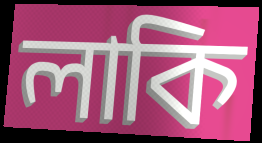
লাকি